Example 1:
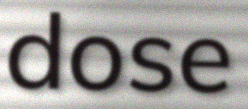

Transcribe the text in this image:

dose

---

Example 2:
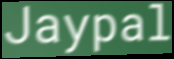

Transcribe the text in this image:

Jaypal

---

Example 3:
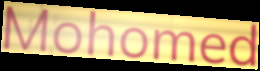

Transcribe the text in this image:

Mohomed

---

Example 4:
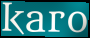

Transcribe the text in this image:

karo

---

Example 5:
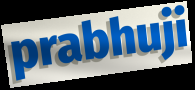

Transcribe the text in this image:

prabhuji